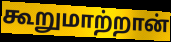
கூறுமாற்றான்